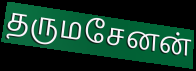
தருமசேனன்